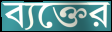
ব্যক্তের